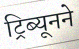
ट्रिब्यूनने